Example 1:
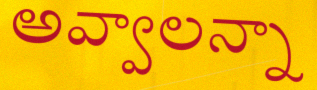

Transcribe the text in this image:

అవ్వాలన్నా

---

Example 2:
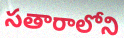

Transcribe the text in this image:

సతారాలోని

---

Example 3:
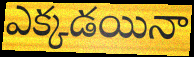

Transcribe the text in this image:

ఎక్కడయినా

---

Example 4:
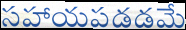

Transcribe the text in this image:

సహాయపడడమే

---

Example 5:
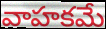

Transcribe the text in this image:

వాహకమే